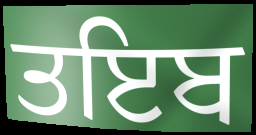
ਤਇਬ